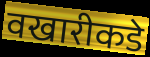
वखारीकडे